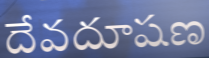
దేవదూషణ